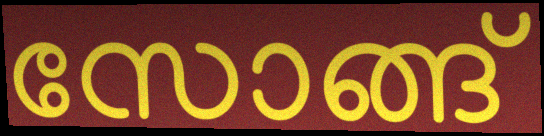
സോങ്ങ്